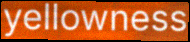
yellowness